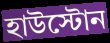
হাউস্টোন